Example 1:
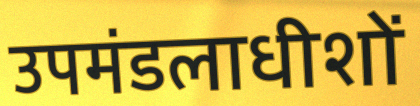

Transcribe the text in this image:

उपमंडलाधीशों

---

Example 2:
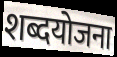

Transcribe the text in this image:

शब्दयोजना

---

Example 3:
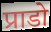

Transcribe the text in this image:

प्राडो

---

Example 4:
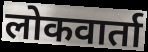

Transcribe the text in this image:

लोकवार्ता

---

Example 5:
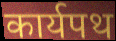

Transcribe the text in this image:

कार्यपथ